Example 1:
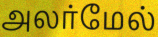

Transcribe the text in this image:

அலர்மேல்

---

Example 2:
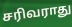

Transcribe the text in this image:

சரிவராது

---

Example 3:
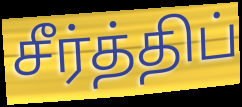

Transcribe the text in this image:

சீர்த்திப்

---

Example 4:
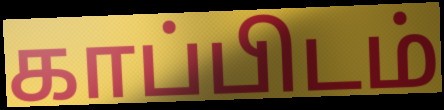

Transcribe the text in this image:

காப்பிடம்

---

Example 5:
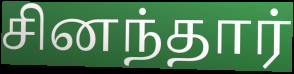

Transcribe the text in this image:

சினந்தார்